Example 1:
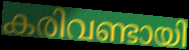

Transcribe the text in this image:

കരിവണ്ടായി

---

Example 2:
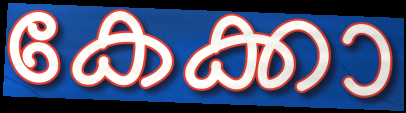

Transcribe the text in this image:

കേക്കാ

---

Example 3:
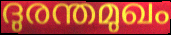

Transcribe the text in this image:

ദുരന്തമുഖം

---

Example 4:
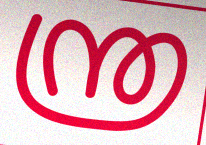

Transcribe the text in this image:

ന്ത്ര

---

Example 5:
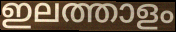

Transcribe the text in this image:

ഇലത്താളം